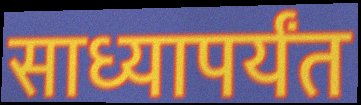
साध्यापर्यंत